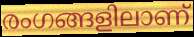
രംഗങ്ങളിലാണ്